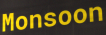
Monsoon